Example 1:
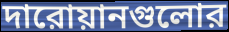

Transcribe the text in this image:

দারোয়ানগুলোর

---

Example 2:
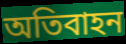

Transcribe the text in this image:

অতিবাহন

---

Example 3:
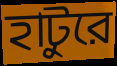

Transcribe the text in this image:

হাটুরে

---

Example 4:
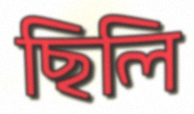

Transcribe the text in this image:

ছিলি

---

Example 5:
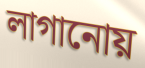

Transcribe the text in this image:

লাগানোয়